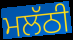
ਮਲੱਠੀ